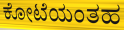
ಕೋಟೆಯಂತಹ